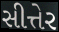
સીત્તેર